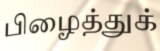
பிழைத்துக்